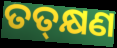
ତତ୍‌କ୍ଷଣ